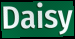
Daisy